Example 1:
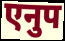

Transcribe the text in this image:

एनुप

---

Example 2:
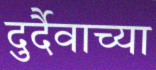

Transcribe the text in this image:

दुर्दैवाच्या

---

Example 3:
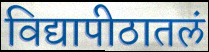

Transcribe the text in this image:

विद्यापीठातलं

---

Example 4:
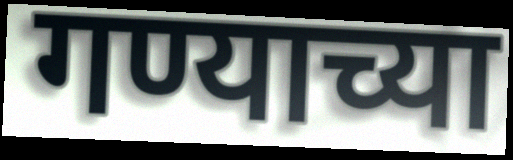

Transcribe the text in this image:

गण्याच्या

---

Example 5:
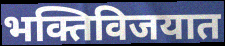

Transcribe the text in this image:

भक्तिविजयात